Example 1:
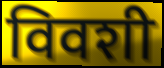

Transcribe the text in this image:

विवशी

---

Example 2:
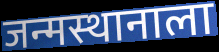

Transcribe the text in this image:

जन्मस्थानाला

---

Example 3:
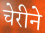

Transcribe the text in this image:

चेरीने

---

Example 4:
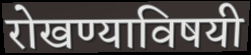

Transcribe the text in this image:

रोखण्याविषयी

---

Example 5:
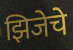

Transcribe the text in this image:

झिजेचे